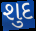
શુદ